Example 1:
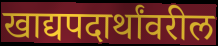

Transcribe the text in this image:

खाद्यपदार्थांवरील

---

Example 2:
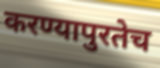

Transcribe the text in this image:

करण्यापुरतेच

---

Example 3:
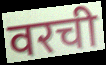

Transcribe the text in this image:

वरची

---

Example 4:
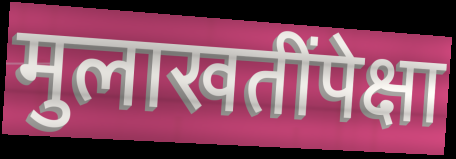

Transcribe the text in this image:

मुलाखतींपेक्षा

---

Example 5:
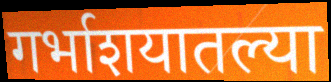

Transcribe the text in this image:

गर्भाशयातल्या